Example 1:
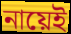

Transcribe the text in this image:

নায়েই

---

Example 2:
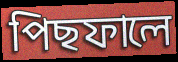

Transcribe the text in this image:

পিছফালে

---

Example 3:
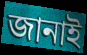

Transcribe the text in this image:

জানাই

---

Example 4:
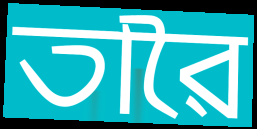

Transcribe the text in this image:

তাৱৈ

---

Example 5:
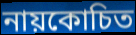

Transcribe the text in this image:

নায়কোচিত